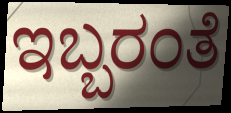
ಇಬ್ಬರಂತೆ